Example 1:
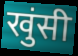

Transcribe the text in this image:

खुंसी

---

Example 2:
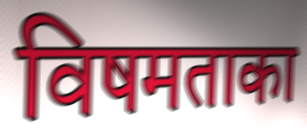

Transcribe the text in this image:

विषमताका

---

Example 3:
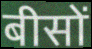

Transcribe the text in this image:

बीसों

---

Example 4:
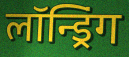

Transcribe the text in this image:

लॉन्ड्रिंग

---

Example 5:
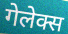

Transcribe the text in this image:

गेलेक्स